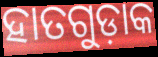
ହାତଗୁଡ଼ାକ